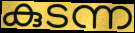
കുടന്ന